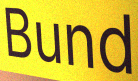
Bund